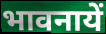
भावनायें